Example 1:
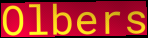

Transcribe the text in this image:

Olbers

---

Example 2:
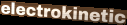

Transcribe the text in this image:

electrokinetic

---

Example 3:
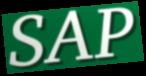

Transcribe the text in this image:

SAP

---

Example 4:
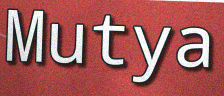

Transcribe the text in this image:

Mutya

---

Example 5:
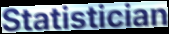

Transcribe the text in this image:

Statistician